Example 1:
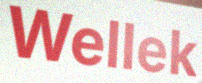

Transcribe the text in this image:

Wellek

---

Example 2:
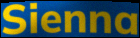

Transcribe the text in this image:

Sienna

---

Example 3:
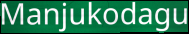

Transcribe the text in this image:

Manjukodagu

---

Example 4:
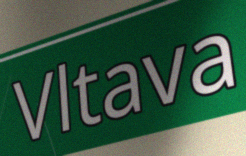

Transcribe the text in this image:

Vltava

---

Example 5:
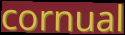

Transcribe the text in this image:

cornual